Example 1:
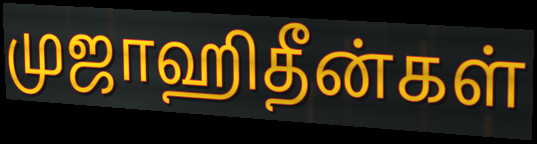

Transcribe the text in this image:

முஜாஹிதீன்கள்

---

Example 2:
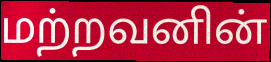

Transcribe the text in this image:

மற்றவனின்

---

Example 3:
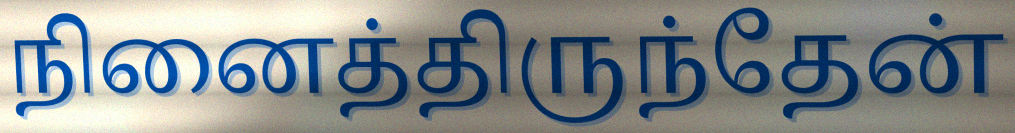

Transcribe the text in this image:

நினைத்திருந்தேன்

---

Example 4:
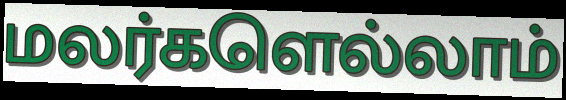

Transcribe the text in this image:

மலர்களெல்லாம்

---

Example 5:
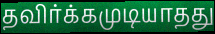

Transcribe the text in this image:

தவிர்க்கமுடியாதது